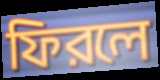
ফিরলে